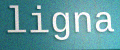
ligna